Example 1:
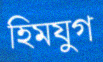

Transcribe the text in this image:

হিমযুগ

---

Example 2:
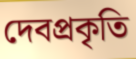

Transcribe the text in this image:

দেবপ্রকৃতি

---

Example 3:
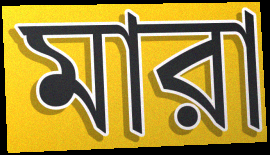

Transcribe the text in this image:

মারা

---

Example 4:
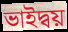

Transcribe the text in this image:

ভাইদ্বয়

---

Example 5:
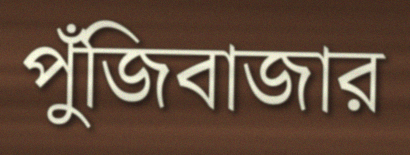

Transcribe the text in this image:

পুঁজিবাজার